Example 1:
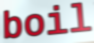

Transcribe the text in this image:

boil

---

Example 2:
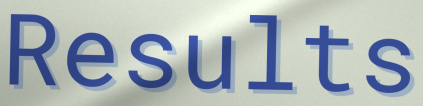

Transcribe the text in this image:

Results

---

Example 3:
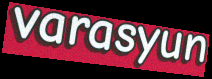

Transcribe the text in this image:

varasyun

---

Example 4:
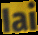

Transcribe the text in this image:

Iai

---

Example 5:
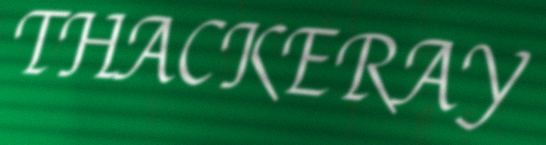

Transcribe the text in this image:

THACKERAY